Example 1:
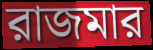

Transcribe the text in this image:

রাজমার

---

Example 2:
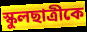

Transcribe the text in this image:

স্কুলছাত্রীকে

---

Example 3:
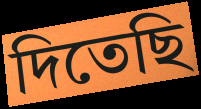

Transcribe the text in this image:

দিতেছি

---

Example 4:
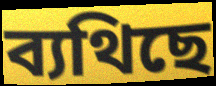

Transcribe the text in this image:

ব্যথিছে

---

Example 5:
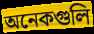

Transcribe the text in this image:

অনেকগুলি